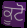
ਕੂਟੋ